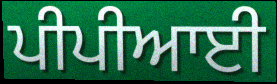
ਪੀਪੀਆਈ